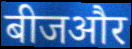
बीजऔर